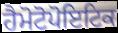
ਹੈਮੋਟੋਪੋਇਟਿਕ